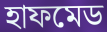
হাফমেড